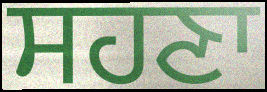
ਸਹਣਾ